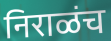
निराळंच